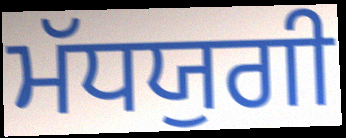
ਮੱਧਯੁਗੀ